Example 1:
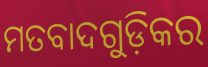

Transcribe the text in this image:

ମତବାଦଗୁଡ଼ିକର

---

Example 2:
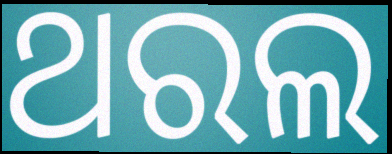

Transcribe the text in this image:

ଥରଲ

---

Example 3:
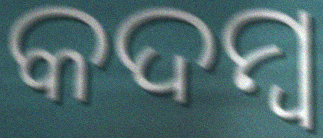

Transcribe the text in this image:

କଦମ୍ୱ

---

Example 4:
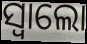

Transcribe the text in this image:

ସ୍ବାଲୋ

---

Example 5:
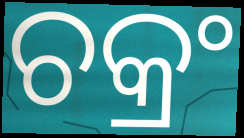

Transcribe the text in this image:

ଚକ୍ରଂ